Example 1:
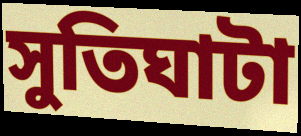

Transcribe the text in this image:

সুতিঘাটা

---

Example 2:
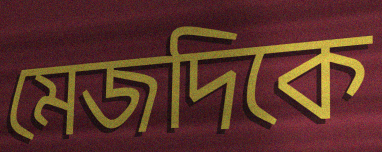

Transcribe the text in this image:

মেজদিকে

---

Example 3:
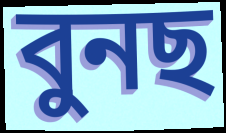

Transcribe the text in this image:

বুনছ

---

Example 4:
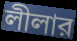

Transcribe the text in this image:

লীলার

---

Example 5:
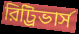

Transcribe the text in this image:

রিট্রিভার্স